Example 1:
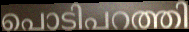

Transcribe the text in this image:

പൊടിപറത്തി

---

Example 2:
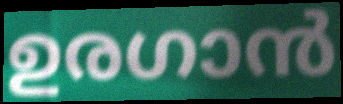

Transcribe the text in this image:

ഉരഗാൻ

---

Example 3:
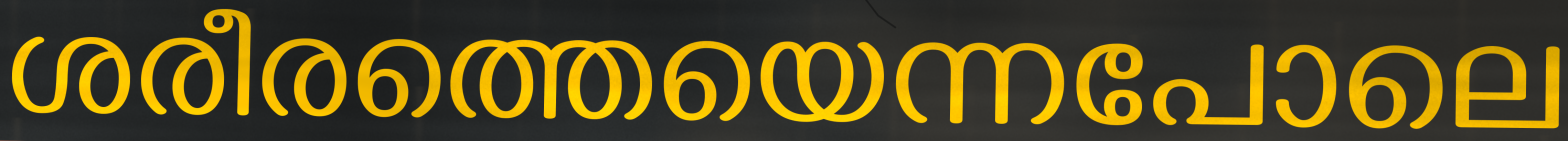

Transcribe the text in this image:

ശരീരത്തെയെന്നപോലെ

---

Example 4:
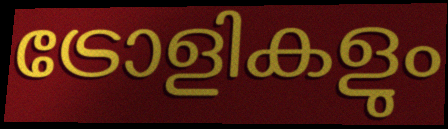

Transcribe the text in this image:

ട്രോളികളും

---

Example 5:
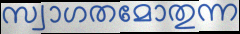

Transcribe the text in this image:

സ്വാഗതമോതുന്ന